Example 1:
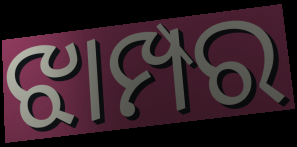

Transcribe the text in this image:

ଝାମ୍ପର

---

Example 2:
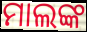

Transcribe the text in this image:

ମାଲଙ୍କ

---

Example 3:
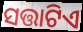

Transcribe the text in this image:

ସତ୍ତାଟିଏ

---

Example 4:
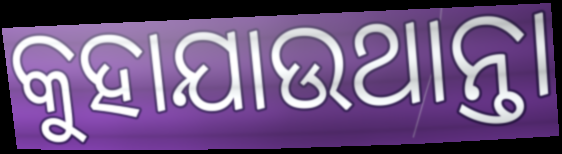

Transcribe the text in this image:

କୁହାଯାଉଥାନ୍ତା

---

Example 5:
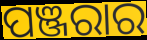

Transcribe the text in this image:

ପଞ୍ଜରାର